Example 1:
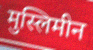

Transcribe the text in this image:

मुस्लिमीन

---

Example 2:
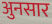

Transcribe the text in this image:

अुनसार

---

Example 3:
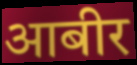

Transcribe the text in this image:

आबीर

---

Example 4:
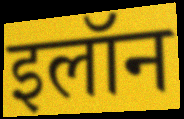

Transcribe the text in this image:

इलॉन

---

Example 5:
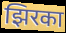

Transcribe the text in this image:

झिरका